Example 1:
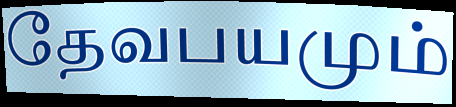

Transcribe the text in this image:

தேவபயமும்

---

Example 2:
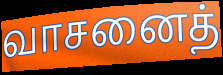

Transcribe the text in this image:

வாசனைத்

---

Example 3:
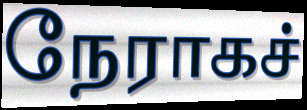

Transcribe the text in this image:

நேராகச்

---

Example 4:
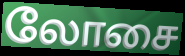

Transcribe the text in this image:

லோசை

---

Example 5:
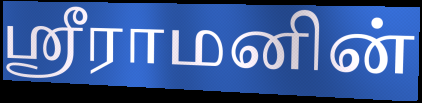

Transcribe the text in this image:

ஸ்ரீராமனின்